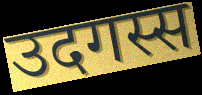
उदगस्स